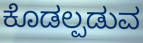
ಕೊಡಲ್ಪಡುವ